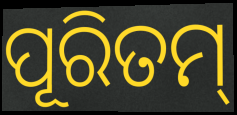
ପୂରିତମ୍